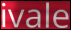
ivale